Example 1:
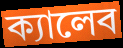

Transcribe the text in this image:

ক্যালেব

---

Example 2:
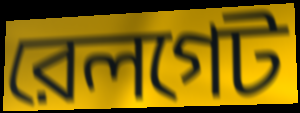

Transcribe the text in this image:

রেলগেট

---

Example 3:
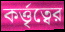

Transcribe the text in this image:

কর্ত্তৃত্বের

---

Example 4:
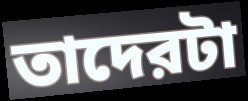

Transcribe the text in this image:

তাদেরটা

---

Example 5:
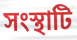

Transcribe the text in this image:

সংস্থাটি